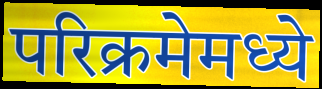
परिक्रमेमध्ये